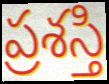
ప్రశస్తి